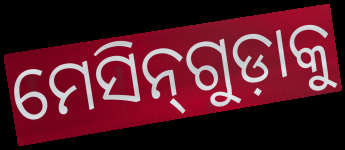
ମେସିନ୍‌ଗୁଡ଼ାକୁ